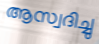
ആസ്വദിച്ചു